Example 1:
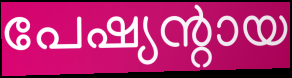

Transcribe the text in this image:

പേഷ്യന്റായ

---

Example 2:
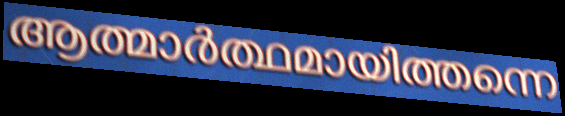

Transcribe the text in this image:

ആത്മാർത്ഥമായിത്തന്നെ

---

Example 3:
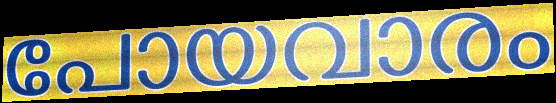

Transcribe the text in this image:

പോയവാരം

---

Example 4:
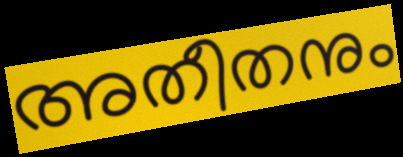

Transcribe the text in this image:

അതീതനും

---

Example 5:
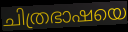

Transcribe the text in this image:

ചിത്രഭാഷയെ